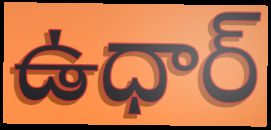
ఉధార్